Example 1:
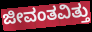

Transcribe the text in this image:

ಜೀವಂತವಿತ್ತು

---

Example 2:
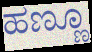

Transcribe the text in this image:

ಹಣ್ಣೂ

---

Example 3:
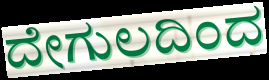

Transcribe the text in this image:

ದೇಗುಲದಿಂದ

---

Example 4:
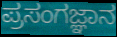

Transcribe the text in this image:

ಪ್ರಸಂಗಜ್ಞಾನ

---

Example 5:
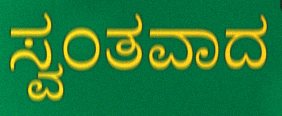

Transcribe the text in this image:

ಸ್ವಂತವಾದ